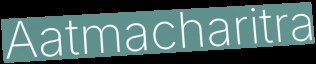
Aatmacharitra